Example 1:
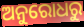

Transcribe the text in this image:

ଅନୁରୋଧରୁ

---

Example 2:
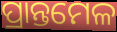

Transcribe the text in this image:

ପ୍ରାନ୍ତମେଳ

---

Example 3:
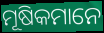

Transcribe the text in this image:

ମୂଷିକମାନେ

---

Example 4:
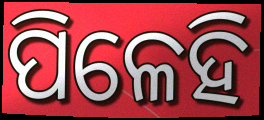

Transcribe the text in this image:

ପିଳେହି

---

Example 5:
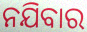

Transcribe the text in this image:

ନଯିବାର